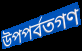
উপপর্বতগণ